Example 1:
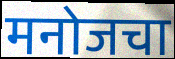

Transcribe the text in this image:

मनोजचा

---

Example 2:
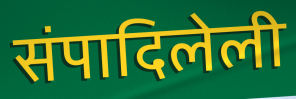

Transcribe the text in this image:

संपादिलेली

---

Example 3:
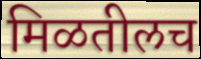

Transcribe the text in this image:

मिळतीलच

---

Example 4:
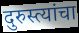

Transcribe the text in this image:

दुरुस्त्यांचा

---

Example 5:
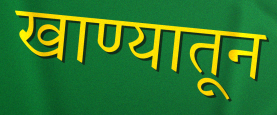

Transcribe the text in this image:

खाण्यातून